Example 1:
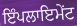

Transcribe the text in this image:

ਇੰਪਲਾਇਮੇਂਟ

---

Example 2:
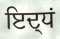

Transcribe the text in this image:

ਇਦ੍ਧਂ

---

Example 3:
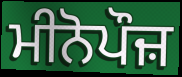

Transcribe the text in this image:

ਮੀਨੋਪੌਜ਼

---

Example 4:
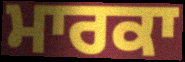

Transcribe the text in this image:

ਮਾਰਕਾ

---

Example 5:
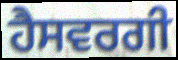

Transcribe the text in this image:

ਹੈਸਵਰਗੀ